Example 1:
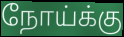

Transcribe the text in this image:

நோய்க்கு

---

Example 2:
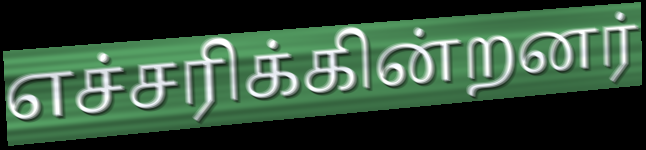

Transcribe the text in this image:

எச்சரிக்கின்றனர்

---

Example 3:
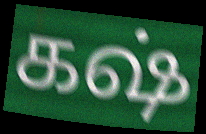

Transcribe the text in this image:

கஷ்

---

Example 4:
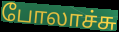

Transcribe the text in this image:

போலாச்சு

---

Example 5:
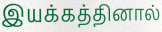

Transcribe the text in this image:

இயக்கத்தினால்